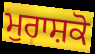
ਮੁਰਾਸ਼ਕੋ